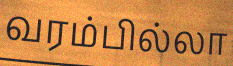
வரம்பில்லா